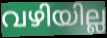
വഴിയില്ല